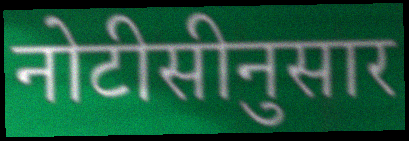
नोटीसीनुसार